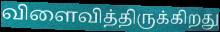
விளைவித்திருக்கிறது